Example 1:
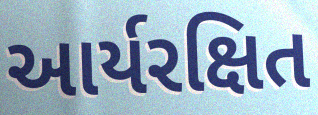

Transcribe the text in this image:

આર્યરક્ષિત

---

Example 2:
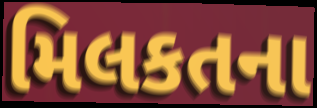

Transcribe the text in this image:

મિલકતના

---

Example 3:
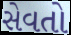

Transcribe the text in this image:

સેવતો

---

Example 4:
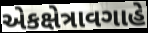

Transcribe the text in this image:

એકક્ષેત્રાવગાહે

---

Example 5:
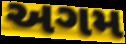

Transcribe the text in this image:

અગમ